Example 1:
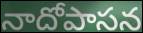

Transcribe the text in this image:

నాదోపాసన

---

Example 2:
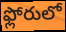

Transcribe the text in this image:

ఫ్లోరులో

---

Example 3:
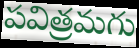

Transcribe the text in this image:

పవిత్రమగు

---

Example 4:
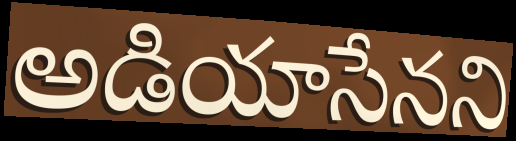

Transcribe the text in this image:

అడియాసేనని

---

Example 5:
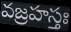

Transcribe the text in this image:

వజ్రహస్తః